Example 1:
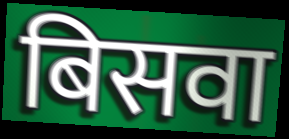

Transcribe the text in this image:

बिसवा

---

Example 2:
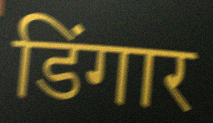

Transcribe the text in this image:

डिंगार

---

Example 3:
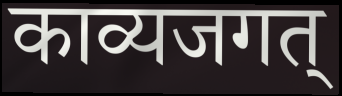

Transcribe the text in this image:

काव्यजगत्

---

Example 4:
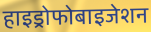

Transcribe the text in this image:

हाइड्रोफोबाइजेशन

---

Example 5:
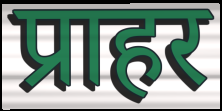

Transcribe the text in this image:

प्राहर